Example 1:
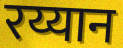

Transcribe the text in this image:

रय्यान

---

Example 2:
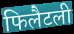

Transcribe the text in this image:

फिलैटली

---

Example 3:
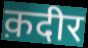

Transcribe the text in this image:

क़दीर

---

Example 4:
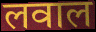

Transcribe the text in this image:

लवाल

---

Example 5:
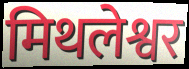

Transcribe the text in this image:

मिथलेश्वर